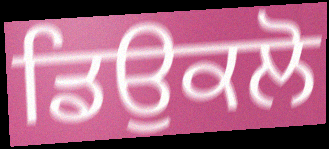
ਡਿਉਕਲੋ